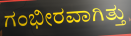
ಗಂಭೀರವಾಗಿತ್ತು